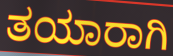
ತಯಾರಾಗಿ